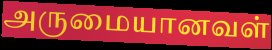
அருமையானவள்